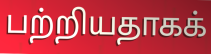
பற்றியதாகக்